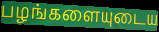
பழங்களையுடைய